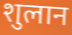
शुलान